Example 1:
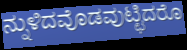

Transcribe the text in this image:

ನ್ನುಳಿದವೊಡವುಟ್ಟಿದರೊ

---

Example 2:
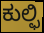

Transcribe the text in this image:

ಕುಲ್ಫಿ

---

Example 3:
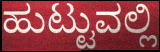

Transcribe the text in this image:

ಹುಟ್ಟುವಲ್ಲಿ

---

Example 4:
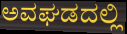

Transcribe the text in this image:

ಅವಘಡದಲ್ಲಿ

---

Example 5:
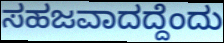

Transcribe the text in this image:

ಸಹಜವಾದದ್ದೆಂದು